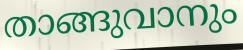
താങ്ങുവാനും